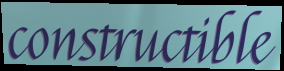
constructible